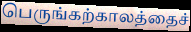
பெருங்கற்காலத்தைச்